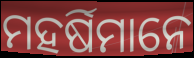
ମହର୍ଷିମାନେ